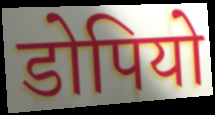
डोपियो